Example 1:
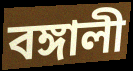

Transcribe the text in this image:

বঙ্গালী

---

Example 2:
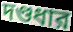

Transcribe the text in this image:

দণ্ডধার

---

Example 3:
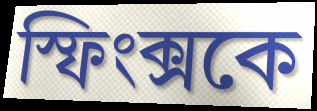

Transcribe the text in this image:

স্ফিংক্সকে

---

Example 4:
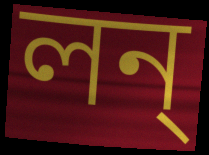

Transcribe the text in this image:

লন্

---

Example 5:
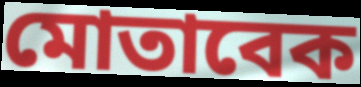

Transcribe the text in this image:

মোতাবেক